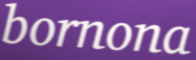
bornona